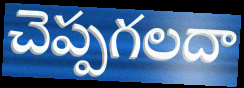
చెప్పగలదా